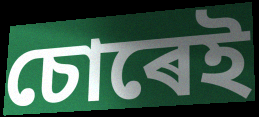
চোৰেই